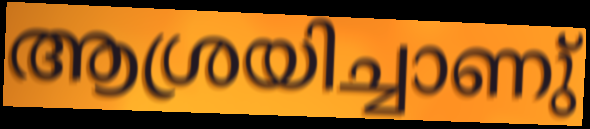
ആശ്രയിച്ചാണു്